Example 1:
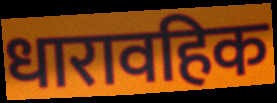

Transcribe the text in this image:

धारावहिक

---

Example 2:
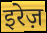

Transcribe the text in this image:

इरेज़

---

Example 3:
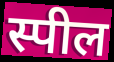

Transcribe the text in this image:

स्पील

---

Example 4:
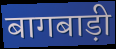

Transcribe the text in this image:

बागबाड़ी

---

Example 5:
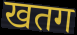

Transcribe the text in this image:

खतग